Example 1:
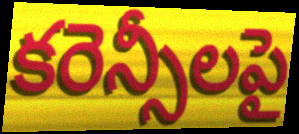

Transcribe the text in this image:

కరెన్సీలపై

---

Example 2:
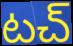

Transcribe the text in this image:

టచ్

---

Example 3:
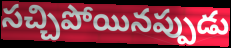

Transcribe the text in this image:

సచ్చిపోయినప్పుడు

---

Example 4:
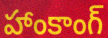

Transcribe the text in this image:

హాంకాంగ్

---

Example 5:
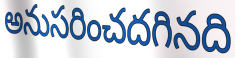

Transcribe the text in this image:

అనుసరించదగినది